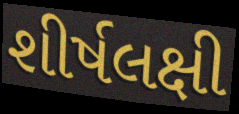
શીર્ષલક્ષી